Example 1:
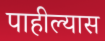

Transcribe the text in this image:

पाहील्यास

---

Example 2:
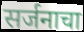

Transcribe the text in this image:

सर्जनाचा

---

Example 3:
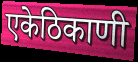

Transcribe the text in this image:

एकेठिकाणी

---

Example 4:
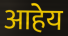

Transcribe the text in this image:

आहेय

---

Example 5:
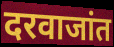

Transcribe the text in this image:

दरवाजांत